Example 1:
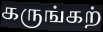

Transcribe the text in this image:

கருங்கற்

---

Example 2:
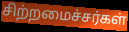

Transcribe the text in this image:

சிற்றமைச்சர்கள்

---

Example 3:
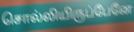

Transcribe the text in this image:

சொல்லியிருப்பேனே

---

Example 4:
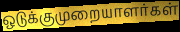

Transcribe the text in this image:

ஒடுக்குமுறையாளர்கள்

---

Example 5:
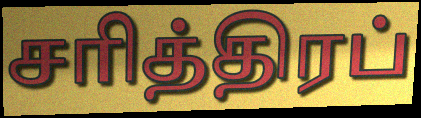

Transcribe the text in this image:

சரித்திரப்